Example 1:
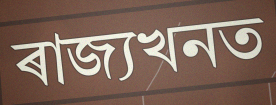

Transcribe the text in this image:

ৰাজ্যখনত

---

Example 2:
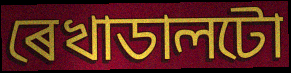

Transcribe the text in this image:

ৰেখাডালটো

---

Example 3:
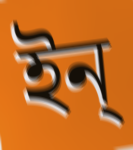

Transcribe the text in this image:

ইন্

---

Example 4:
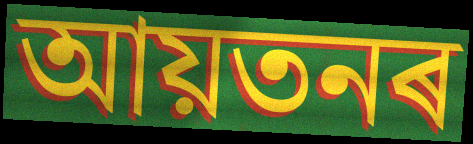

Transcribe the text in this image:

আয়তনৰ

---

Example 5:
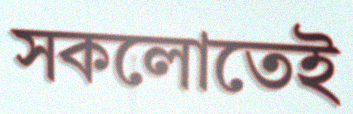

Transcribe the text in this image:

সকলোতেই